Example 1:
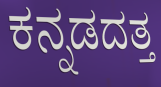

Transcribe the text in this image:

ಕನ್ನಡದತ್ತ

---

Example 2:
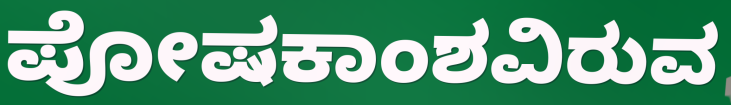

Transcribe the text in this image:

ಪೋಷಕಾಂಶವಿರುವ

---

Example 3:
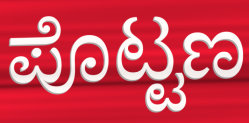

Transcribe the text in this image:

ಪೊಟ್ಟಣ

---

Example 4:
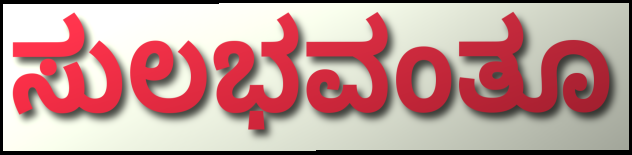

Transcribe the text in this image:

ಸುಲಭವಂತೂ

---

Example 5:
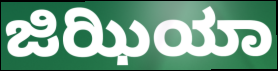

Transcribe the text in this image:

ಜಿಝಿಯಾ